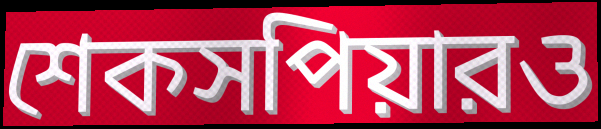
শেকসপিয়ারও